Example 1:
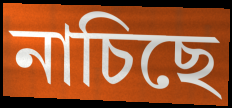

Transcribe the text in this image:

নাচিছে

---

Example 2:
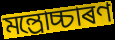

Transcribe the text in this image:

মন্ত্ৰোচ্চাৰণ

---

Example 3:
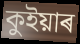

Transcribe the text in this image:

কুইয়াৰ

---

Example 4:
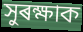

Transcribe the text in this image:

সুৰক্ষাক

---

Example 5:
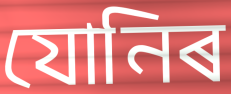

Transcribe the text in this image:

যোনিৰ